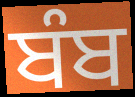
ਬੰਬ